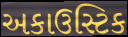
અકાઉસ્ટિક